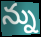
న్ను